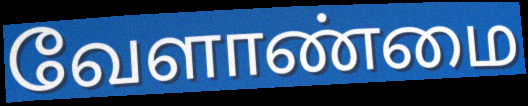
வேளாண்மை